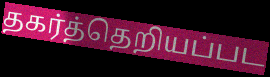
தகர்த்தெறியப்பட